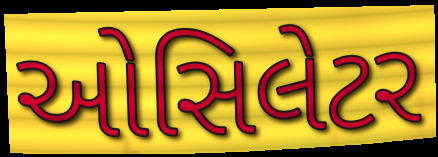
ઓસિલેટર